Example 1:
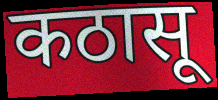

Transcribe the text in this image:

कठासू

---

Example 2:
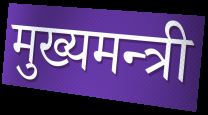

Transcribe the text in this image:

मुख्यमन्त्री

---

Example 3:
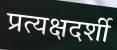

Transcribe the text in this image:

प्रत्यक्षदर्शी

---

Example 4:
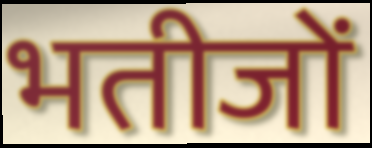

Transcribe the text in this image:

भतीजों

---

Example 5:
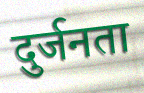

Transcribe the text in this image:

दुर्जनता